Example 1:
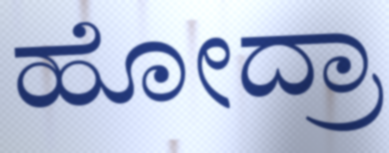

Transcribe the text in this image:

ಹೋದ್ರಾ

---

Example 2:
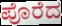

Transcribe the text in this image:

ಪೊರೆದ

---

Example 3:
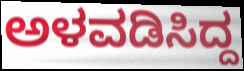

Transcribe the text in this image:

ಅಳವಡಿಸಿದ್ದ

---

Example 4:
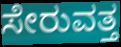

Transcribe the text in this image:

ಸೇರುವತ್ತ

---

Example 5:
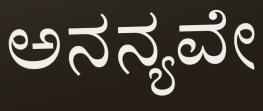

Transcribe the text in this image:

ಅನನ್ಯವೇ